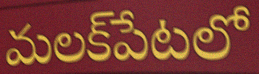
మలక్‌పేటలో